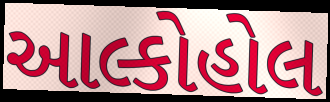
આલ્કોહોલ